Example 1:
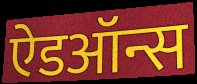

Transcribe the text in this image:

ऐडऑन्स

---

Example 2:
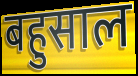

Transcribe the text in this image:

बहुसाल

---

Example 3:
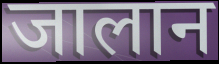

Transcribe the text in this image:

जालान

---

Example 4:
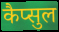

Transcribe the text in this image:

कैप्सुल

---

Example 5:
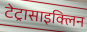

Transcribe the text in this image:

टेट्रासाइक्लिन